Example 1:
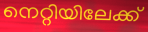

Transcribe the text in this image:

നെറ്റിയിലേക്ക്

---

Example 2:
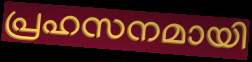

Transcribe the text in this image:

പ്രഹസനമായി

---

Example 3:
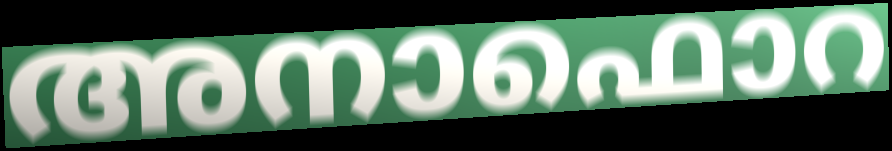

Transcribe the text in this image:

അനാഫൊറ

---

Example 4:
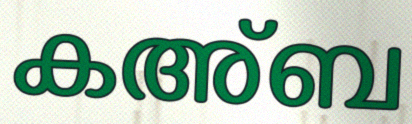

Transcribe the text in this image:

കഅ്ബ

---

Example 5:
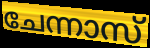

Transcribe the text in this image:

ചേന്നാസ്